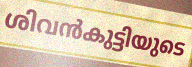
ശിവൻകുട്ടിയുടെ